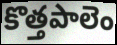
కొత్తపాలెం